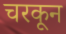
चरकून